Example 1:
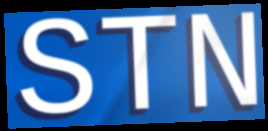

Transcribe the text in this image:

STN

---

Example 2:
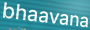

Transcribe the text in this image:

bhaavana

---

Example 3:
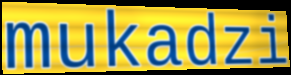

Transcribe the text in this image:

mukadzi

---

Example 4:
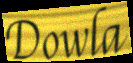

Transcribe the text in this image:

Dowla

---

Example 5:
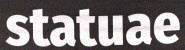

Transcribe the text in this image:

statuae